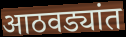
आठवड्यांत